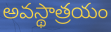
అవస్థాత్రయం